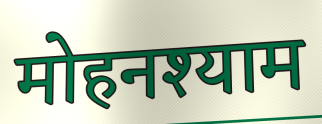
मोहनश्याम